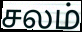
சலம்